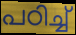
പഠിച്ച്